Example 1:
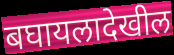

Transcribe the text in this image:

बघायलादेखील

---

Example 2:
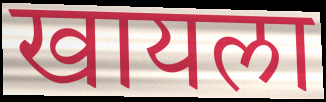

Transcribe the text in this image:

खायला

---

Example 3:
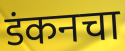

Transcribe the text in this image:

डंकनचा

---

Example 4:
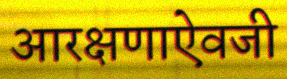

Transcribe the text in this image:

आरक्षणाऐवजी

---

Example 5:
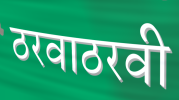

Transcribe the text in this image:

ठरवाठरवी